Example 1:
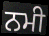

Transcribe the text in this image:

ਨਮੀ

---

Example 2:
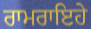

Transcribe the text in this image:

ਰਾਮਰਾਇਹੇ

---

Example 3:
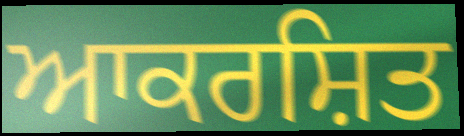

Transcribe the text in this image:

ਆਕਰਸ਼ਿਤ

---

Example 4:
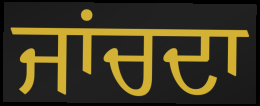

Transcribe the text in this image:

ਜਾਂਚਦਾ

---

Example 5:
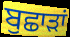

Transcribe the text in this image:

ਬੁਛਾੜਾਂ